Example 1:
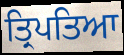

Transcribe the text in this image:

ਤ੍ਰਿਪਤਿਆ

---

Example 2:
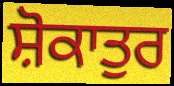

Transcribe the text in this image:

ਸ਼ੋਕਾਤੁਰ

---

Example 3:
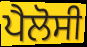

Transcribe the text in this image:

ਪੈਲੋਸੀ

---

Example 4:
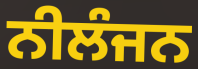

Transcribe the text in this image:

ਨੀਲੰਜਨ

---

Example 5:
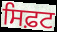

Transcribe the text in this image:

ਸਿਫ਼ਟ